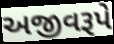
અજીવરૂપે